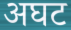
अघट